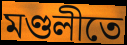
মণ্ডলীতে